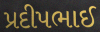
પ્રદીપભાઈ